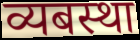
व्यबस्था